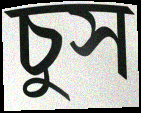
চুস